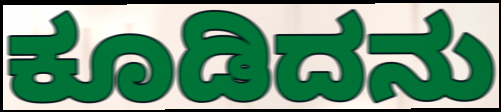
ಕೂಡಿದನು